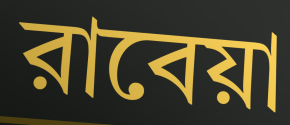
রাবেয়া